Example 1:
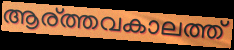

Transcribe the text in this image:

ആര്ത്തവകാലത്ത്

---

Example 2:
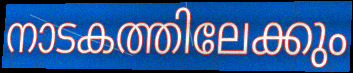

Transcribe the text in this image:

നാടകത്തിലേക്കും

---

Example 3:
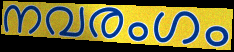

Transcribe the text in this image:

നവരംഗം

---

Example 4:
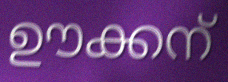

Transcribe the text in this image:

ഊക്കന്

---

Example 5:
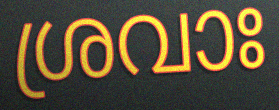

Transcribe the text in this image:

ശ്രവാഃ